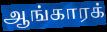
ஆங்காரக்